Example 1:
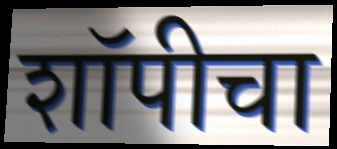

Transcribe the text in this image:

शॉपीचा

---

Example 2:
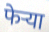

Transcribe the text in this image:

फेर्‍या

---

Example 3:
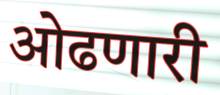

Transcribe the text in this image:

ओढणारी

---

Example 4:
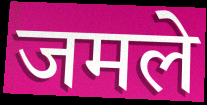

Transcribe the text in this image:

जमले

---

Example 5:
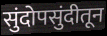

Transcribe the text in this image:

सुंदोपसुंदीतून